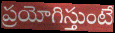
ప్రయోగిస్తుంటే